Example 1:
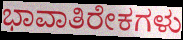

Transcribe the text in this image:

ಭಾವಾತಿರೇಕಗಳು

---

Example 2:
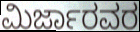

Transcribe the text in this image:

ಮಿರ್ಜಾರವರ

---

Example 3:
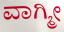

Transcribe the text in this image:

ವಾಗ್ಮೀ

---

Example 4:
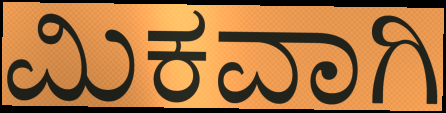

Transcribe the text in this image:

ಮಿಕವಾಗಿ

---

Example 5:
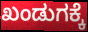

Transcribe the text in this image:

ಖಂಡುಗಕ್ಕೆ